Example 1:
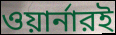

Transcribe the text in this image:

ওয়ার্নারই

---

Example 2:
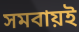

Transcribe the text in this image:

সমবায়ই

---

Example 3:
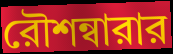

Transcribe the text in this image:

রৌশন্বারার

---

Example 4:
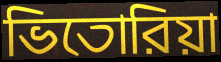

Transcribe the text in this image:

ভিতোরিয়া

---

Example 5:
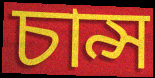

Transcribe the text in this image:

চান্স